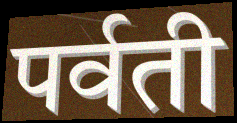
पर्वती